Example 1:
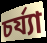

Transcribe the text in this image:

চর্য্যা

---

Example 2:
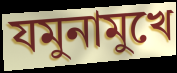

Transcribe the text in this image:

যমুনামুখে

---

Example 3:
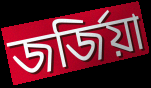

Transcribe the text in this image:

জর্জিয়া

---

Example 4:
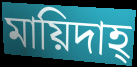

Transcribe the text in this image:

মায়িদাহ্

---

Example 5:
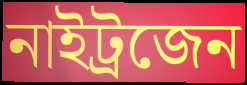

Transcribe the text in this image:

নাইট্রজেন